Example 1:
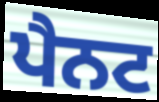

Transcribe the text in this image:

ਪੈਨਟ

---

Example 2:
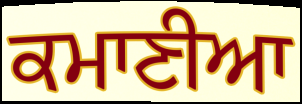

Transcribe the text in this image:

ਕਮਾਣੀਆ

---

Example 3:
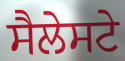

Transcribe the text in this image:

ਸੈਲੇਸਟੇ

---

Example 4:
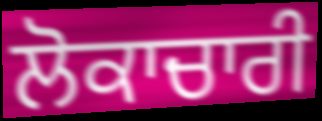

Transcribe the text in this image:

ਲੋਕਾਚਾਰੀ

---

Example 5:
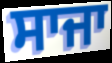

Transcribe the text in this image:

ਸਾਜਾ